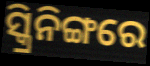
ସ୍କ୍ରିନିଙ୍ଗରେ